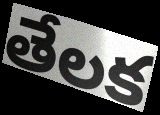
తేలక